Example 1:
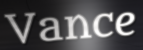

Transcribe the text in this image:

Vance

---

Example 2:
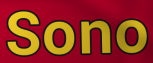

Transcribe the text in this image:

Sono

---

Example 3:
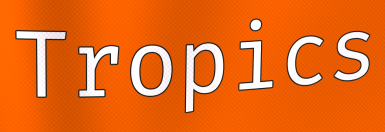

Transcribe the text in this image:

Tropics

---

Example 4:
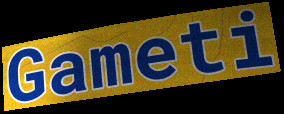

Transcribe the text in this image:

Gameti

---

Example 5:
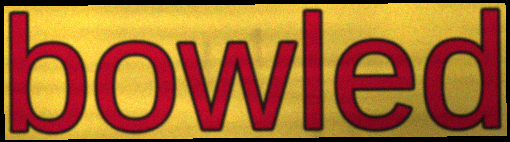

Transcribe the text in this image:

bowled